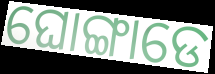
ଘୋଙ୍ଗାଡେ